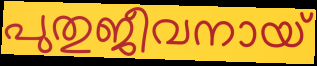
പുതുജീവനായ്